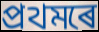
প্ৰথমৰে